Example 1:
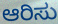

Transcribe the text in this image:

ಆರಿಸು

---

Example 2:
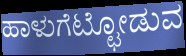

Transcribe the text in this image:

ಹಾಳುಗೆಟ್ಟೋಡುವ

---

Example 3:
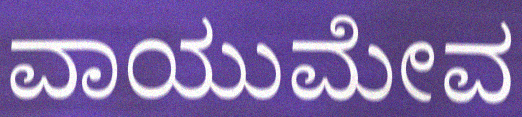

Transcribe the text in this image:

ವಾಯುಮೇವ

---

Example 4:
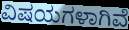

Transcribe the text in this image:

ವಿಷಯಗಳಾಗಿವೆ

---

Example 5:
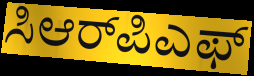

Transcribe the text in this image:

ಸಿಆರ್‌ಪಿಎಫ್